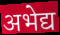
अभेद्य